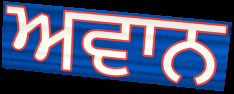
ਅਵਾਨ